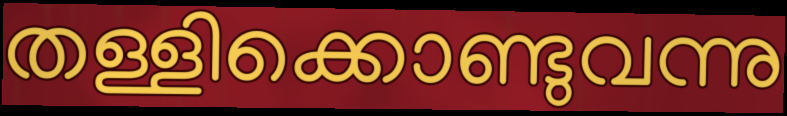
തള്ളിക്കൊണ്ടുവന്നു